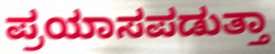
ಪ್ರಯಾಸಪಡುತ್ತಾ